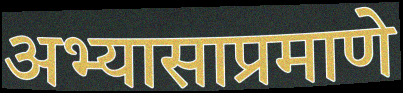
अभ्यासाप्रमाणे